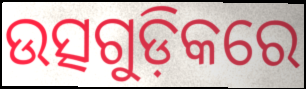
ଉତ୍ସଗୁଡ଼ିକରେ